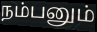
நம்பனும்